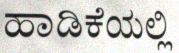
ಹಾಡಿಕೆಯಲ್ಲಿ